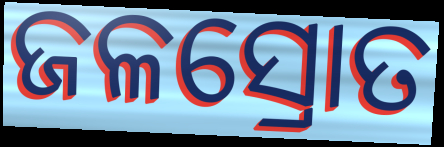
ଜଳସ୍ରୋତ